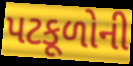
પટકૂળોની